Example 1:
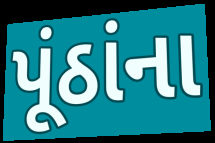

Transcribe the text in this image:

પૂંઠાંના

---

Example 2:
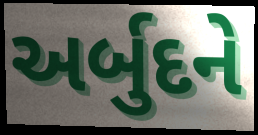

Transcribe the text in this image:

અર્બુદને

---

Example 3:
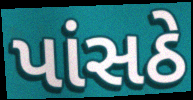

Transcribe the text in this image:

પાંસઠે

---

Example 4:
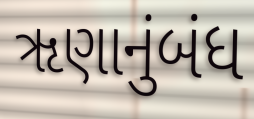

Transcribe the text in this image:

ૠણાનુંબંધ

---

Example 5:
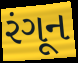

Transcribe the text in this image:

રંગૂન